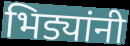
भिड्यांनी